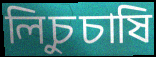
লিচুচাষি